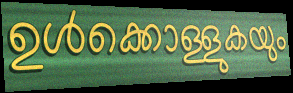
ഉൾക്കൊള്ളുകയും